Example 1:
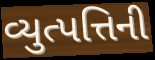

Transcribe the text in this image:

વ્યુત્પત્તિની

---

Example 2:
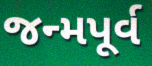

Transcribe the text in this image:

જન્મપૂર્વ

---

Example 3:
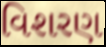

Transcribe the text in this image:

વિશરણ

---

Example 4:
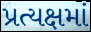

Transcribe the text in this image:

પ્રત્‍યક્ષમાં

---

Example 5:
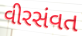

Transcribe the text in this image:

વીરસંવત